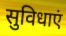
सुविधाएं